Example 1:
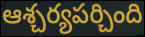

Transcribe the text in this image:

ఆశ్చర్యపర్చింది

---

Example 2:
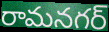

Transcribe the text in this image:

రామనగర్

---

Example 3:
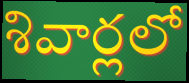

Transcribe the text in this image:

శివార్లలో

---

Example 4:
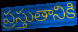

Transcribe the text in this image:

ప్రస్తుతానికి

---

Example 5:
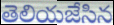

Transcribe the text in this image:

తెలియజేసిన